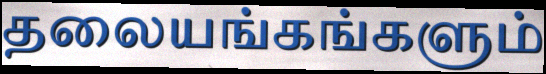
தலையங்கங்களும்